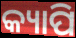
କ୍ୟାପି